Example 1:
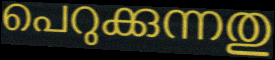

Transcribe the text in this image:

പെറുക്കുന്നതു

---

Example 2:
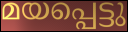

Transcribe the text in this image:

മയപ്പെട്ടു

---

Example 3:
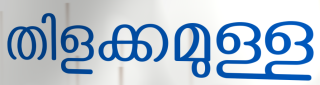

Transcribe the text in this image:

തിളക്കമുള്ള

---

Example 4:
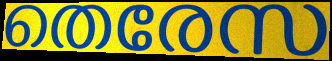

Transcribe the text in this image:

തെരേസ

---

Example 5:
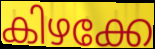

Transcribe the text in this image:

കിഴക്കേ